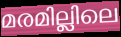
മരമില്ലിലെ